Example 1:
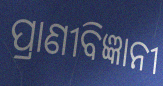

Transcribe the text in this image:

ପ୍ରାଣୀବିଜ୍ଞାନୀ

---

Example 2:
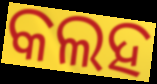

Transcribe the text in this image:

କଲହ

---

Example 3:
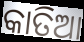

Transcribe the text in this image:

କାତିଆ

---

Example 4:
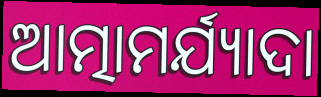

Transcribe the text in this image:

ଆତ୍ମାମର୍ଯ୍ୟାଦା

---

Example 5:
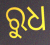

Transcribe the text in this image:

ରୁଧ